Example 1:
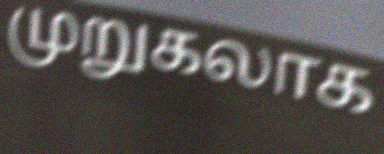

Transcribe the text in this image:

முறுகலாக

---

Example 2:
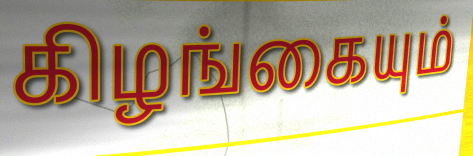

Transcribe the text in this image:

கிழங்கையும்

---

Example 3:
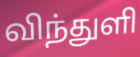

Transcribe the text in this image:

விந்துளி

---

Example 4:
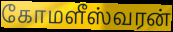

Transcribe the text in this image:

கோமளீஸ்வரன்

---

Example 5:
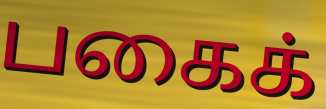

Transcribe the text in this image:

பகைக்